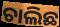
ଚାଲିଛ